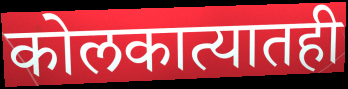
कोलकात्यातही